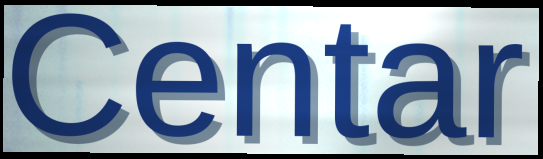
Centar